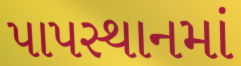
પાપસ્થાનમાં